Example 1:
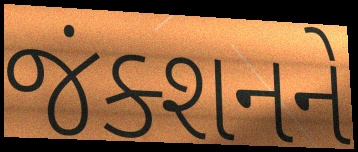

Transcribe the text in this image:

જંક્શનને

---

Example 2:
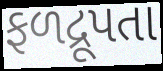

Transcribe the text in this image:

ફળદ્રૂપતા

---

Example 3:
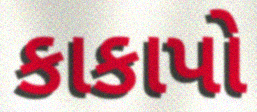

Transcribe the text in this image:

કાકાપો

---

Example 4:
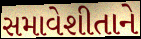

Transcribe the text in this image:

સમાવેશીતાને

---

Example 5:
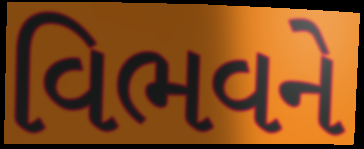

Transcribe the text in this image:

વિભવને